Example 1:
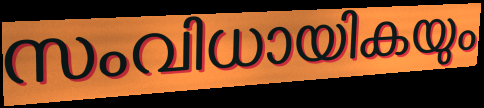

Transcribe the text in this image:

സംവിധായികയും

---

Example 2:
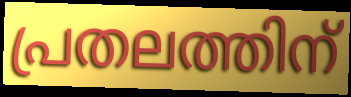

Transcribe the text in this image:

പ്രതലത്തിന്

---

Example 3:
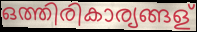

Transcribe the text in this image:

ഒത്തിരികാര്യങ്ങള്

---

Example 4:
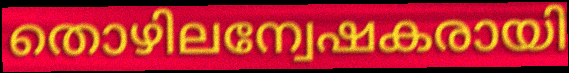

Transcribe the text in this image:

തൊഴിലന്വേഷകരായി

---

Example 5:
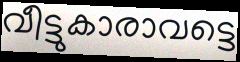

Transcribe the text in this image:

വീട്ടുകാരാവട്ടെ